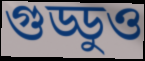
গুড্ডুও